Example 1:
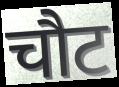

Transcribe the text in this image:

चौट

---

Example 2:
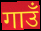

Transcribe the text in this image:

गाउँ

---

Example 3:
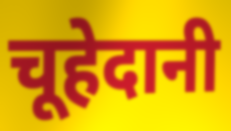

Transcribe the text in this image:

चूहेदानी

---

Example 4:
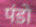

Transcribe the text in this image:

पंडो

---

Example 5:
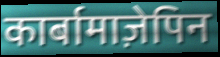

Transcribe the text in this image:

कार्बामाज़ेपिन